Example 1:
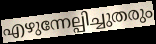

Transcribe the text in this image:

എഴുന്നേല്പിച്ചുതരും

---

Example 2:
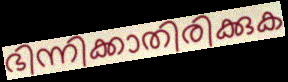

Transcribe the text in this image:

ഭിന്നിക്കാതിരിക്കുക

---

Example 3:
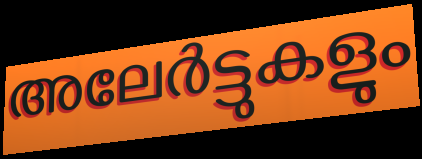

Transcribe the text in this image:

അലേർട്ടുകളും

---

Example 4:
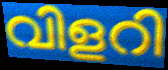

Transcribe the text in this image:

വിളറി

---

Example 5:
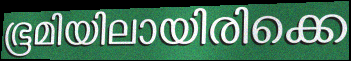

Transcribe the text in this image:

ഭൂമിയിലായിരിക്കെ